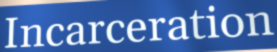
Incarceration